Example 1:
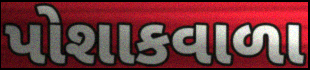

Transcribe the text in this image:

પોશાકવાળા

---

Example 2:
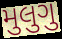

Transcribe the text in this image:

મુલુગુ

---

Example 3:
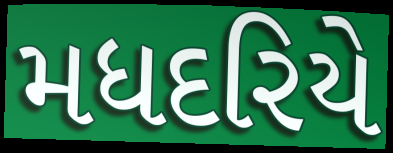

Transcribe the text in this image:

મધદરિયે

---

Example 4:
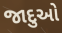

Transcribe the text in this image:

જાદુઓ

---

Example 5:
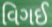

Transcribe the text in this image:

વિગઈ